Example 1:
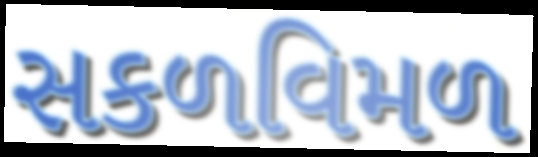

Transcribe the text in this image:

સકળવિમળ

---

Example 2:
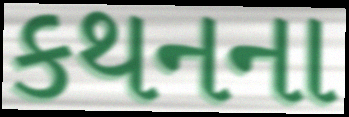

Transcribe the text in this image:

કથનના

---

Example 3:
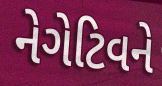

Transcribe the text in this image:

નેગેટિવને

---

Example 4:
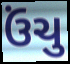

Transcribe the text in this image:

ઉંચુ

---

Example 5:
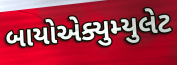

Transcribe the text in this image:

બાયોએક્યુમ્યુલેટ